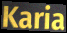
Karia